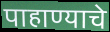
पाहाण्याचे